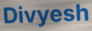
Divyesh